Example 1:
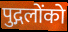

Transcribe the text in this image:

पुद्गलोंको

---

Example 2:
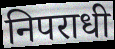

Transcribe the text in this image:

निपराधी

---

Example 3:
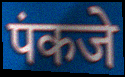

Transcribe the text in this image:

पंकजे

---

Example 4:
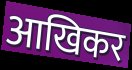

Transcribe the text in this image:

आखिकर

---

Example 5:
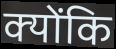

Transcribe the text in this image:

क्‍योंकि